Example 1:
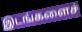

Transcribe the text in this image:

இடங்களைச்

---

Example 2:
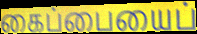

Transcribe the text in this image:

கைப்பையைப்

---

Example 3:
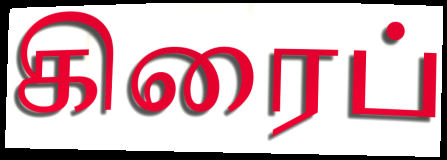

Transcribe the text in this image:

கிரைப்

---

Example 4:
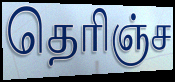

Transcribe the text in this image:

தெரிஞ்ச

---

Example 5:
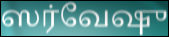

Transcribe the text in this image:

ஸர்வேஷு